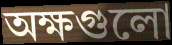
অক্ষগুলো